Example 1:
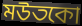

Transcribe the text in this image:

মউতকো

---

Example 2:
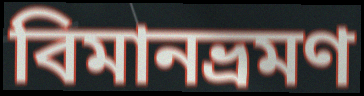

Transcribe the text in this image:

বিমানভ্রমণ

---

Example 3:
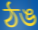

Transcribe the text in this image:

ঠঙ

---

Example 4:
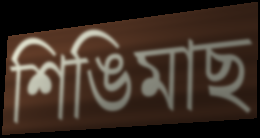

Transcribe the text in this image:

শিঙিমাছ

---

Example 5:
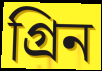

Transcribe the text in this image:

গ্রিন